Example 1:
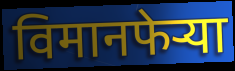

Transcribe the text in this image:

विमानफेऱ्या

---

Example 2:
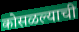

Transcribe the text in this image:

कोसळल्याची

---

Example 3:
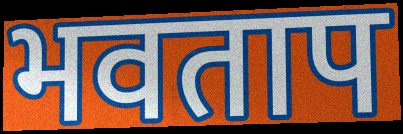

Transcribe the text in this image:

भवताप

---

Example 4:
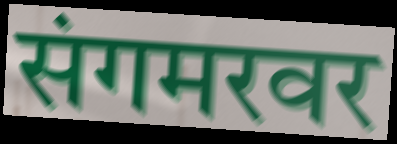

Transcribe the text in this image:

संगमरवर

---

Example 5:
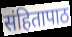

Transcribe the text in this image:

संहितापाठ